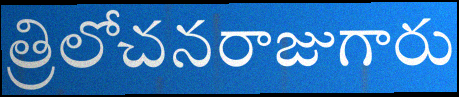
త్రిలోచనరాజుగారు